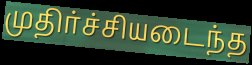
முதிர்ச்சியடைந்த